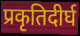
प्रकृतिदीर्घ